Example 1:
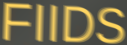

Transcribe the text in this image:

FIIDS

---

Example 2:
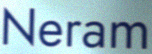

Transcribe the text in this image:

Neram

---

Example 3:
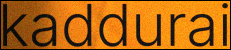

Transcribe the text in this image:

kaddurai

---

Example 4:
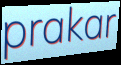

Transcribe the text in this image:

prakar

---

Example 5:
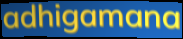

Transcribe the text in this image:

adhigamana